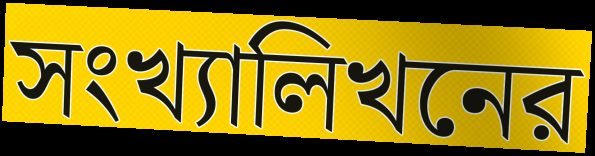
সংখ্যালিখনের